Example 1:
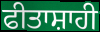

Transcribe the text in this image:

ਫੀਤਾਸ਼ਾਹੀ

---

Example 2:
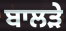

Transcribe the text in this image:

ਬਾਲੜੇ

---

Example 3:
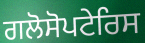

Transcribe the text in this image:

ਗਲੋਸੋਪਟੇਰਿਸ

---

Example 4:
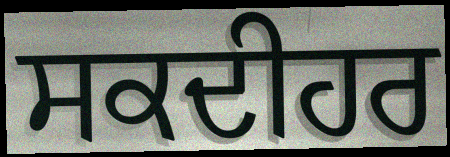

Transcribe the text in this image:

ਸਕਦੀਹਰ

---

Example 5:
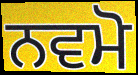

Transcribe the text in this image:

ਨਵਮੋ